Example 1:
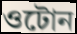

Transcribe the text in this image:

ওটোন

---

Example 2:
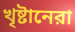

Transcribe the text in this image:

খৃষ্টানেরা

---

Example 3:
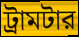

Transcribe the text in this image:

ট্রামটার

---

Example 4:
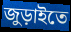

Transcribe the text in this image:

জুড়াইতে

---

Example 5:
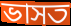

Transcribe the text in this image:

ভাসত